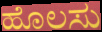
ಹೊಲಸು